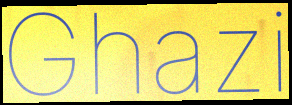
Ghazi